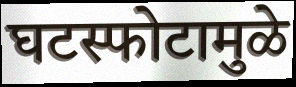
घटस्फोटामुळे